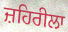
ਜ਼ਹਿਰੀਲਾ